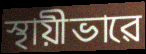
স্থায়ীভাৱে